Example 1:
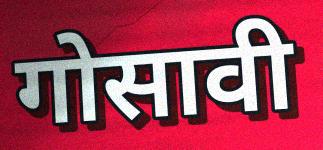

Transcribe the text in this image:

गोसावी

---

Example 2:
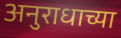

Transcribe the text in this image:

अनुराधाच्या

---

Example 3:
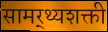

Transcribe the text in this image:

सामर्थ्यशक्ती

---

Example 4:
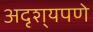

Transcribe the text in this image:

अदृश्यपणे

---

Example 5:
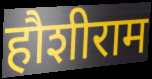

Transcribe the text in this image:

हौशीराम